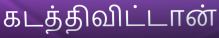
கடத்திவிட்டான்